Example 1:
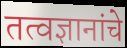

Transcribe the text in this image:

तत्वज्ञानांचे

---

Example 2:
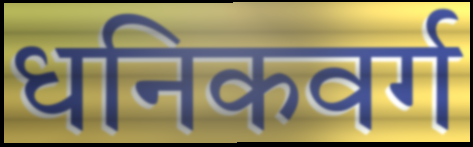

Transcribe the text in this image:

धनिकवर्ग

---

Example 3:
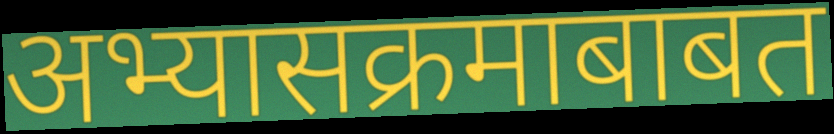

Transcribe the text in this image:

अभ्यासक्रमाबाबत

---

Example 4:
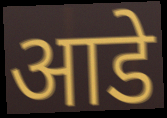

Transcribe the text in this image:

आडे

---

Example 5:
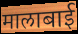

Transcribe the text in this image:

मालाबाई